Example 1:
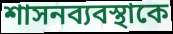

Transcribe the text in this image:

শাসনব্যবস্থাকে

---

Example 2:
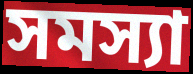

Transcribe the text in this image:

সমস্যা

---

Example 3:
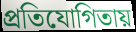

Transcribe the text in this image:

প্রতিযোগিতায়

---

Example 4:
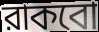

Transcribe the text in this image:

রাকবো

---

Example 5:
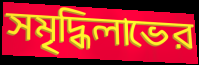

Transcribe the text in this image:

সমৃদ্ধিলাভের